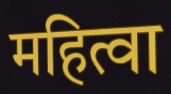
महित्वा